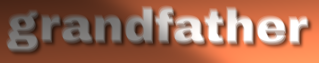
grandfather